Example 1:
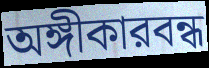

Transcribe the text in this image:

অঙ্গীকারবন্ধ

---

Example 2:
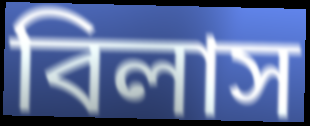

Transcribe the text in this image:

বিলাস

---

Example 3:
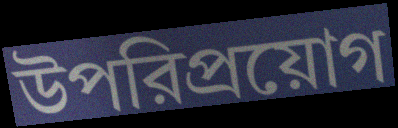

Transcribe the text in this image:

উপরিপ্রয়োগ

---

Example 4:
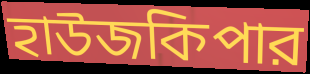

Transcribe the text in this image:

হাউজকিপার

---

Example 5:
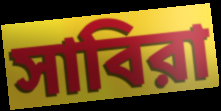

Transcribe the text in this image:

সাবিরা